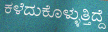
ಕಳೆದುಕೊಳ್ಳುತ್ತಿದ್ದೆ